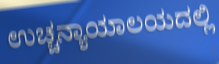
ಉಚ್ಚನ್ಯಾಯಾಲಯದಲ್ಲಿ